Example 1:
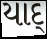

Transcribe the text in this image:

યાદ્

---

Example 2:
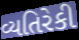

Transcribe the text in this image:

વ્યતિરેકી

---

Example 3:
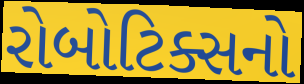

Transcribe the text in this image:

રોબોટિક્સનો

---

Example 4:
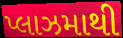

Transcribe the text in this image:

પ્લાઝમાથી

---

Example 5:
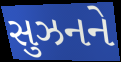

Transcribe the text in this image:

સુઝનને